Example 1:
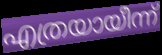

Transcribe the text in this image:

എത്രയായീന്ന്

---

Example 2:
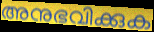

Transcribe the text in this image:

അനുഭവിക്കുക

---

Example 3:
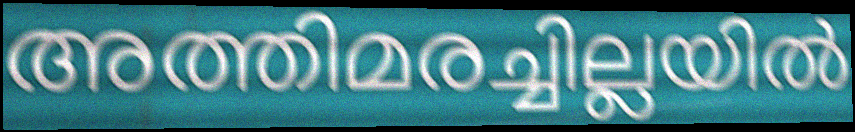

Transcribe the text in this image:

അത്തിമരച്ചില്ലയിൽ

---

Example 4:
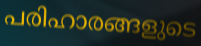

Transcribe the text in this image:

പരിഹാരങ്ങളുടെ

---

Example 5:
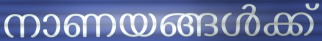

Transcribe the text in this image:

നാണയങ്ങൾക്ക്